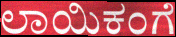
ಲಾಯಿಕಂಗೆ